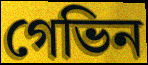
গেভিন